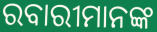
ରବାରୀମାନଙ୍କ